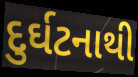
દુર્ઘટનાથી